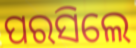
ପରସିଲେ